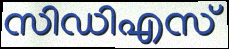
സിഡിഎസ്